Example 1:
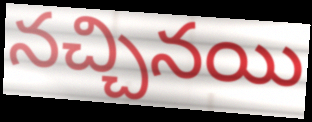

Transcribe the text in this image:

నచ్చినయి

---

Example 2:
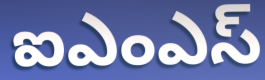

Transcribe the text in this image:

ఐఎంఎస్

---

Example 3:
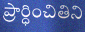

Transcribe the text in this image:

ప్రార్ధించితిని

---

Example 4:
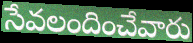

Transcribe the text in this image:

సేవలందించేవారు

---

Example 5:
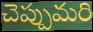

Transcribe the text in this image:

చెప్పుమరి